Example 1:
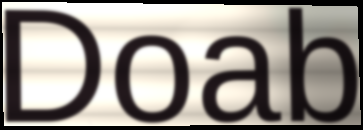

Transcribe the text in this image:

Doab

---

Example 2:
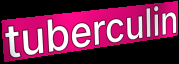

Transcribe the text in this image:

tuberculin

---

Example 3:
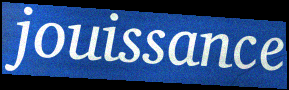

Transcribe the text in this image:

jouissance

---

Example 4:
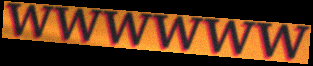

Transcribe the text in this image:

wwwwww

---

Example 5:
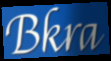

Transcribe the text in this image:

Bkra